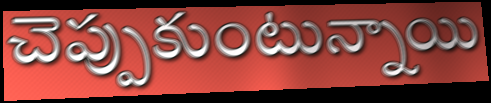
చెప్పుకుంటున్నాయి